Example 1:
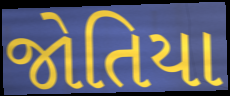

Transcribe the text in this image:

જોતિયા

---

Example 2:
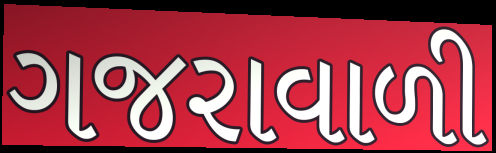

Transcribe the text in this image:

ગજરાવાળી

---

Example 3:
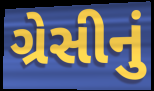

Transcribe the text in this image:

ગ્રેસીનું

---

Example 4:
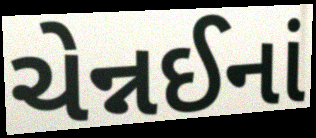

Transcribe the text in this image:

ચેન્નઈનાં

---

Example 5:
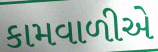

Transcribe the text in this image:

કામવાળીએ